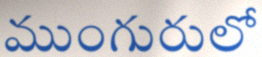
ముంగురులో